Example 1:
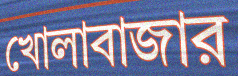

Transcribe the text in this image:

খোলাবাজার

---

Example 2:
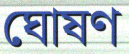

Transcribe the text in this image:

ঘোষণ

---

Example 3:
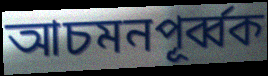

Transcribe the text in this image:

আচমনপূর্ব্বক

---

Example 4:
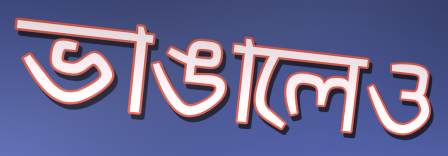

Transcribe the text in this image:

ভাঙালেও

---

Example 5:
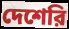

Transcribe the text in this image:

দেশেরি